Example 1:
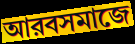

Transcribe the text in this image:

আরবসমাজে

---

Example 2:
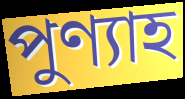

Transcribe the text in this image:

পুণ্যাহ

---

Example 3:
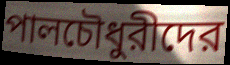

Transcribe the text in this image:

পালচৌধুরীদের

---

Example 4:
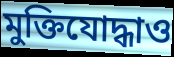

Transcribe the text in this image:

মুক্তিযোদ্ধাও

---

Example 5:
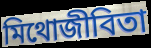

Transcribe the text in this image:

মিথোজীবিতা